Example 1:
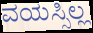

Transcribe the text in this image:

ವಯಸ್ಸಿಲ್ಲ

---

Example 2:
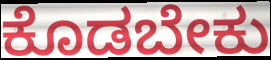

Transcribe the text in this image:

ಕೊಡಬೇಕು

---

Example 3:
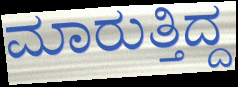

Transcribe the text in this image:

ಮಾರುತ್ತಿದ್ದ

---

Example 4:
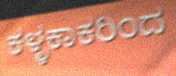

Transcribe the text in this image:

ಕಳ್ಳಕಾಕರಿಂದ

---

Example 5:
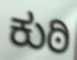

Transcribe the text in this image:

ಕುಠಿ